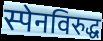
स्पेनविरुद्ध